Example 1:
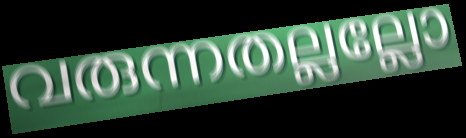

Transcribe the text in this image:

വരുന്നതല്ലല്ലോ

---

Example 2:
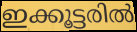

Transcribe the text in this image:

ഇക്കൂട്ടരിൽ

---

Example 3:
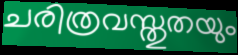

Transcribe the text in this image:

ചരിത്രവസ്തുതയും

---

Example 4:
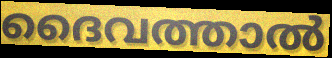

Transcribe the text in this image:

ദൈവത്താൽ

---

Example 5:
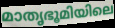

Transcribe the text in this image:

മാതൃഭൂമിയിലെ